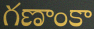
గణాంకా